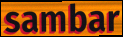
sambar